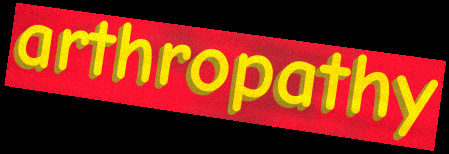
arthropathy